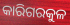
କାରିଗରକୁଳ